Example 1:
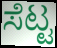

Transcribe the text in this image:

ಸೆಟ್ಟ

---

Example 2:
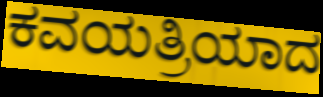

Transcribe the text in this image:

ಕವಯತ್ರಿಯಾದ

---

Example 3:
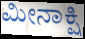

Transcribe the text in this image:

ಮೀನಾಕ್ಷಿ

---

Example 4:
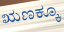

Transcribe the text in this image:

ಋಣಕ್ಕೂ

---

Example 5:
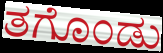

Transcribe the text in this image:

ತಗೊಂಡು